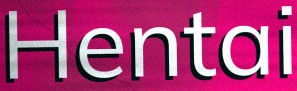
Hentai